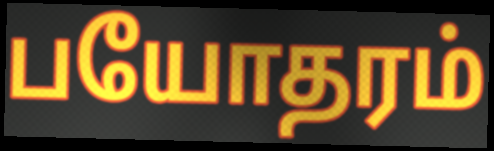
பயோதரம்